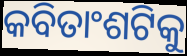
କବିତାଂଶଟିକୁ